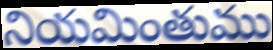
నియమింతుము